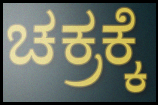
ಚಕ್ರಕ್ಕೆ